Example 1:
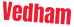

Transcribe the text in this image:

Vedham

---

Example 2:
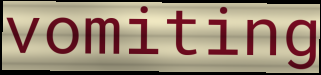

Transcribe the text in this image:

vomiting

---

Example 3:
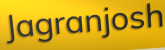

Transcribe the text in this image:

Jagranjosh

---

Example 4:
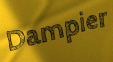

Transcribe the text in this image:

Dampier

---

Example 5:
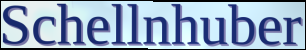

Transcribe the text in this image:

Schellnhuber